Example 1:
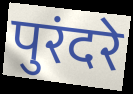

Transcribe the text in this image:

पुरंदरे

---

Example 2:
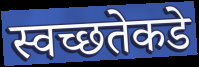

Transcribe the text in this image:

स्वच्छतेकडे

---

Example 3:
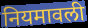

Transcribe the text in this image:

नियमावली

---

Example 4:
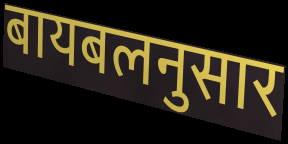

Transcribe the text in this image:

बायबलनुसार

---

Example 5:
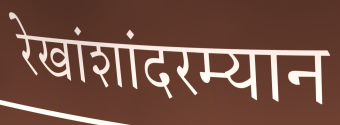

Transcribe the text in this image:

रेखांशांदरम्यान